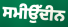
ਸਮੀਉੱਦੀਨ